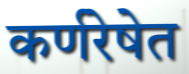
कर्णरेषेत